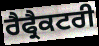
ਰੈਫ੍ਰੈਕਟਰੀ